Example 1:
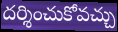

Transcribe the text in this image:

దర్శించుకోవచ్చు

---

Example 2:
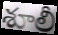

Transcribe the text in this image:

శూలీ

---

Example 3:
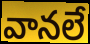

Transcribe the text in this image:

వానలే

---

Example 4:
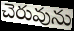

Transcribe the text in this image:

చెరువును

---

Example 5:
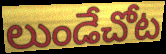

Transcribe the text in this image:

లుండేచోట